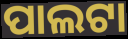
ପାଲଟା